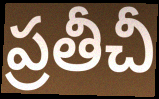
ప్రతీచీ